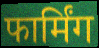
फार्मिंग